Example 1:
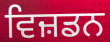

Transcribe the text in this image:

ਵਿਜ਼ਡਨ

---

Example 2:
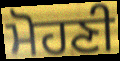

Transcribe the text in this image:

ਮੋਹਣੀ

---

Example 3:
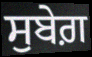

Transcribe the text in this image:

ਸੁਬੇਗ਼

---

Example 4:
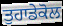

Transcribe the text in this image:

ਤੁਹਾਡੇਕੋਲ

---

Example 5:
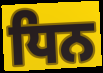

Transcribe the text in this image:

ਧਿਨ